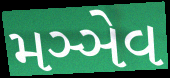
મઞ્ઞેવ